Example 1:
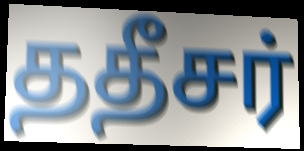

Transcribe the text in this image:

ததீசர்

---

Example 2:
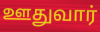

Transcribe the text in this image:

ஊதுவார்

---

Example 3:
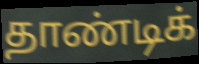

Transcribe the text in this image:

தாண்டிக்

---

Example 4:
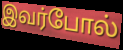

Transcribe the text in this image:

இவர்போல்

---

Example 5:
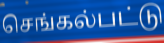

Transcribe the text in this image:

செங்கல்பட்டு